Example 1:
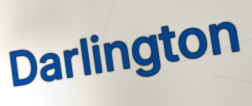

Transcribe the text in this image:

Darlington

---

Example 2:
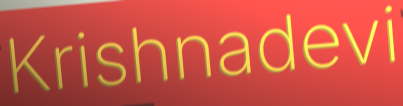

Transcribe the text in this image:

Krishnadevi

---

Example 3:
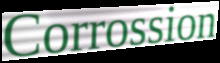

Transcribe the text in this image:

Corrossion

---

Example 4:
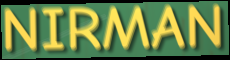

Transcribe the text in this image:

NIRMAN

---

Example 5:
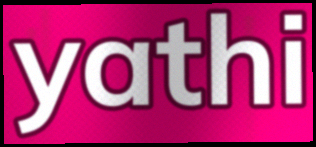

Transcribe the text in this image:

yathi